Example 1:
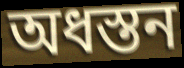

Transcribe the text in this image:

অধস্তন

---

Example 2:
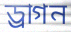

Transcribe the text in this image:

ড্রাগন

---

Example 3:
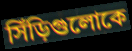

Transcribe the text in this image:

সিঁড়িগুলোকে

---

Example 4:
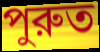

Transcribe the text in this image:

পুরুত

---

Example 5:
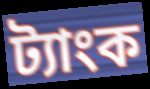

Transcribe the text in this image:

ট্যাংক